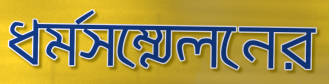
ধর্মসম্মেলনের